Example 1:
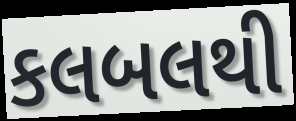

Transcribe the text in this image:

કલબલથી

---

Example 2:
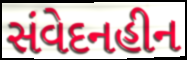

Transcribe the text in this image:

સંવેદનહીન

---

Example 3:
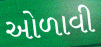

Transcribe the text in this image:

ઓળાવી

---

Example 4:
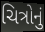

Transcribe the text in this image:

ચિત્રોનું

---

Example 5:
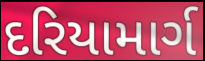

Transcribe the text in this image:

દરિયામાર્ગ